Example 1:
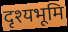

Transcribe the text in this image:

दृश्यभूमि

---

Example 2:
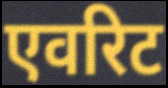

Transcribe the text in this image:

एवरिट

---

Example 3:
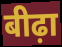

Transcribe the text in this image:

बीढ़ा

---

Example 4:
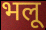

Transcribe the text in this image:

भलू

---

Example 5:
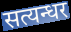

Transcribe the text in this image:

सत्यन्धर